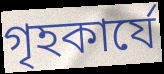
গৃহকার্যে